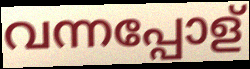
വന്നപ്പോള്